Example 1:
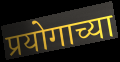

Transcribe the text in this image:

प्रयोगाच्या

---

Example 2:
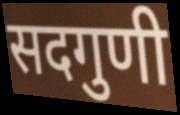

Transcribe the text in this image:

सदगुणी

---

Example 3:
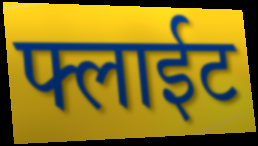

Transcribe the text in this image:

फ्लाईट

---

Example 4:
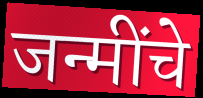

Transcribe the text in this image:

जन्मींचे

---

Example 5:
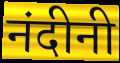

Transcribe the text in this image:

नंदीनी